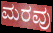
ಮರವು